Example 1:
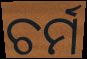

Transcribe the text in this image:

ଚର୍ମ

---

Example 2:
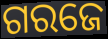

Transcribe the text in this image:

ଗରଜେ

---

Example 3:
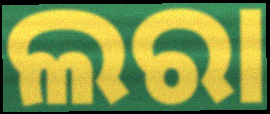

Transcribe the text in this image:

ଲରା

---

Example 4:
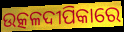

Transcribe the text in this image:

ଉତ୍କଳଦୀପିକାରେ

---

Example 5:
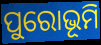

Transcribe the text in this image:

ପୁରୋଭୂମି